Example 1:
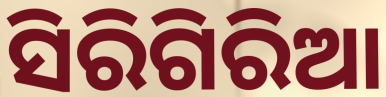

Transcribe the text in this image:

ସିରିଗିରିଆ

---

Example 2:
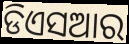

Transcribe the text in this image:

ଡିଏସଆର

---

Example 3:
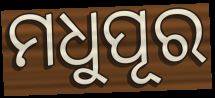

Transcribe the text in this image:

ମଧୁପୂର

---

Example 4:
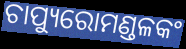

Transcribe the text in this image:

ଚାପ୍ୟୁରୋମଣ୍ଡଳକଂ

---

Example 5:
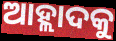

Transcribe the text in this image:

ଆହ୍ଲାଦକୁ